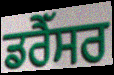
ਡਰੈੱਸਰ